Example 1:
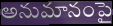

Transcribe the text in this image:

అనుమానంపై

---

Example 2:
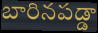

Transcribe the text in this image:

బారినపడ్డా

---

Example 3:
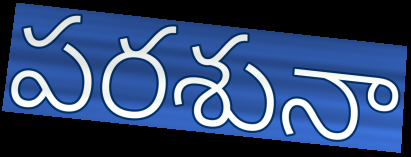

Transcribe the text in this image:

పరశునా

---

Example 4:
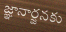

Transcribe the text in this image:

జ్ఞానార్జనకు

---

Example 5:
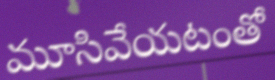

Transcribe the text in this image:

మూసివేయటంతో